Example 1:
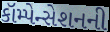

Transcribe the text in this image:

કૉમ્પેન્સેશનની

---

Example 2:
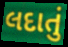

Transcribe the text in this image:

લદાતું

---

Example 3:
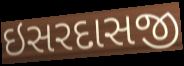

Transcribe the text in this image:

ઇસરદાસજી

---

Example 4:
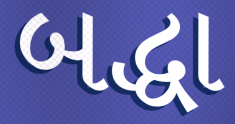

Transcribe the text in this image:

બદ્ધા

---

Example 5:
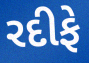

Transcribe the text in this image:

રદીફે